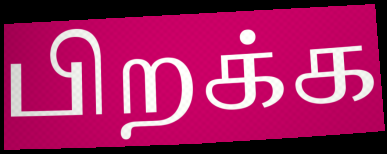
பிறக்க